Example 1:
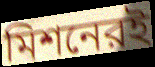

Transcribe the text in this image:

মিশনেরই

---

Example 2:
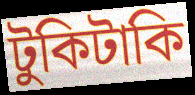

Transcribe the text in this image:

টুকিটাকি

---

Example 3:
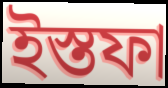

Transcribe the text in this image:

ইস্তফা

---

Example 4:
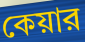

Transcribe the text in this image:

কেয়ার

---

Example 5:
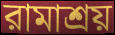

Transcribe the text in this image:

রামাশ্রয়